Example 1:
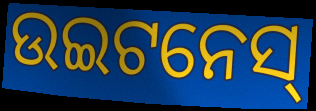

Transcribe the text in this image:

ଉଇଟନେସ୍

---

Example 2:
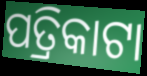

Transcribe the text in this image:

ପତ୍ରିକାଟା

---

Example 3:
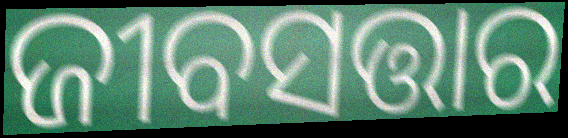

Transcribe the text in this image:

ଜୀବସତ୍ତାର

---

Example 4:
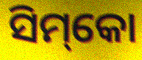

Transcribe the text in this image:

ସିମ୍‌କୋ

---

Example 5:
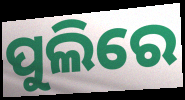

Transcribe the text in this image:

ପୁଲିରେ